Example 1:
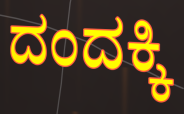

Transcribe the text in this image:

ದಂದಕ್ಕಿ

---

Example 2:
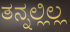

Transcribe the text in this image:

ತನ್ನಲ್ಲಿಲ್ಲ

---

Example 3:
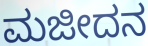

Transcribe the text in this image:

ಮಜೀದನ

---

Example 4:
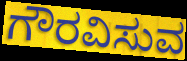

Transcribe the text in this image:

ಗೌರವಿಸುವ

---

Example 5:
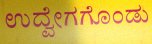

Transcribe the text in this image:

ಉದ್ವೇಗಗೊಂಡು